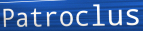
Patroclus